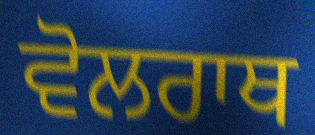
ਵੋਲਰਾਥ